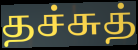
தச்சுத்